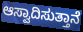
ಆಸ್ವಾದಿಸುತ್ತಾನೆ